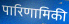
पारिणामिकी